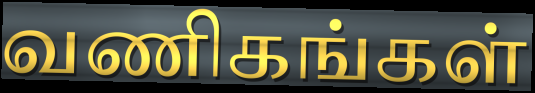
வணிகங்கள்